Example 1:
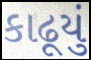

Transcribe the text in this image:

કાઢૂયું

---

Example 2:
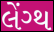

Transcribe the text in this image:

લેંગ્થ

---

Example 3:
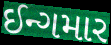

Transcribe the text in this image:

ઈન્ગમાર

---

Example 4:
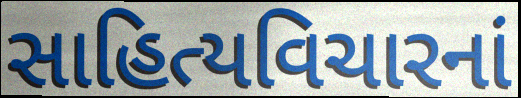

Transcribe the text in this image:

સાહિત્યવિચારનાં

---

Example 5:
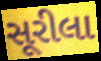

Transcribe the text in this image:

સૂરીલા